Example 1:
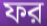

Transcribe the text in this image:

ফর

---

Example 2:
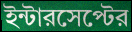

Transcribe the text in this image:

ইন্টারসেপ্টের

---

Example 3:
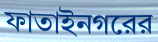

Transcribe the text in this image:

ফাতাইনগরের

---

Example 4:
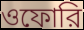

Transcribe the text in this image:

ওফোরি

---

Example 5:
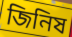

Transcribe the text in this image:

জিনিষ